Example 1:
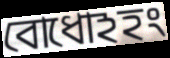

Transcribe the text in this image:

বোধোঽহং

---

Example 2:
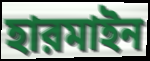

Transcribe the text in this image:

হারমাইন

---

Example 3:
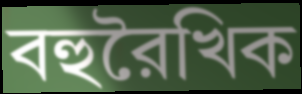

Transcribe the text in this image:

বহুরৈখিক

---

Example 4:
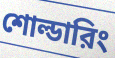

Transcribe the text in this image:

শোল্ডারিং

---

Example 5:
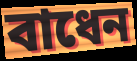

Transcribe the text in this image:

বাধেন